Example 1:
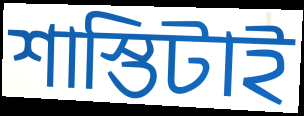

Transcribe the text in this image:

শাস্তিটাই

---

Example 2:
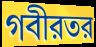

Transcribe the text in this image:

গবীরতর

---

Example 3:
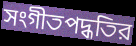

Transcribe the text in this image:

সংগীতপদ্ধতির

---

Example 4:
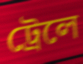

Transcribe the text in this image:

ট্রেলে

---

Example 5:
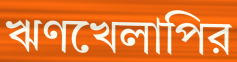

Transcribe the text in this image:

ঋণখেলাপির